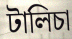
টালিচা